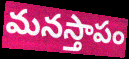
మనస్తాపం